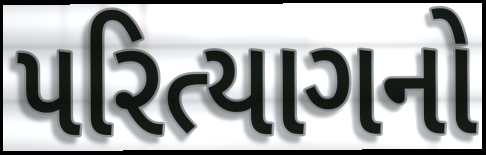
પરિત્યાગનો